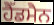
ਹੈੱਡਮੈਨ